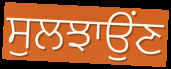
ਸੁਲਝਾਉਂਣ